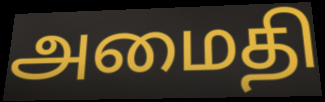
அமைதி